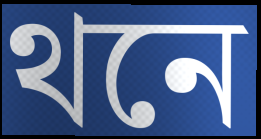
থনে